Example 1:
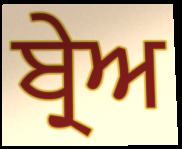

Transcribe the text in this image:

ਬ੍ਰੇਅ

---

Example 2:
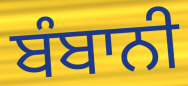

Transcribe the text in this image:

ਬੰਬਾਨੀ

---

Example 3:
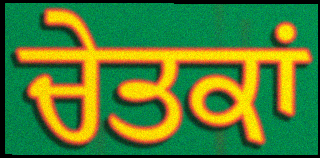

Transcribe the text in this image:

ਚੇਤਕਾਂ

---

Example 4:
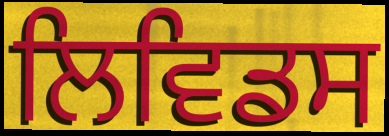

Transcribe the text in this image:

ਲਿਵਿਡਸ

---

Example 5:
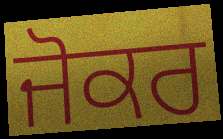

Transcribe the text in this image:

ਜੋਕਰ